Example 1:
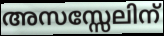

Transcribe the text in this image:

അസസ്സേലിന്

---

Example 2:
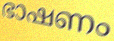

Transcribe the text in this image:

ഭാഷണം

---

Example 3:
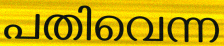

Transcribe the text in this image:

പതിവെന്ന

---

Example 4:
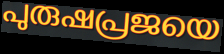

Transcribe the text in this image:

പുരുഷപ്രജയെ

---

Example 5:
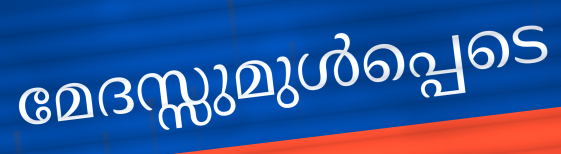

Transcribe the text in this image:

മേദസ്സുമുൾപ്പെടെ